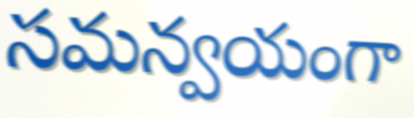
సమన్వయంగా